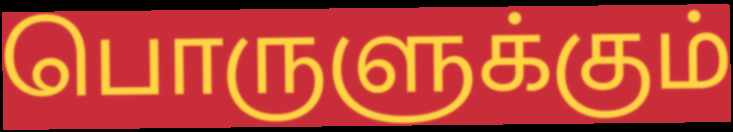
பொருளுக்கும்